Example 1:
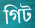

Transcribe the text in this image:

গিট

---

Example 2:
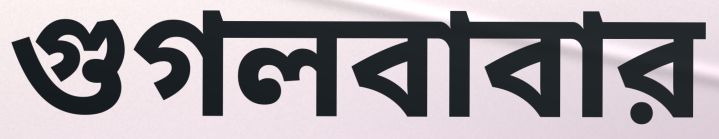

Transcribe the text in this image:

গুগলবাবার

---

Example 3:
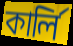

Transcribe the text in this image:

কার্লি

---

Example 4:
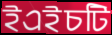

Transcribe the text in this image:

ইএইচটি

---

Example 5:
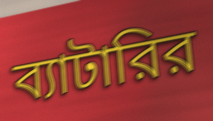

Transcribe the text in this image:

ব্যাটারির